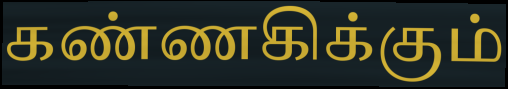
கண்ணகிக்கும்